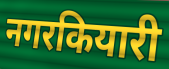
नगरकियारी